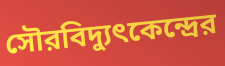
সৌরবিদ্যুৎকেন্দ্রের